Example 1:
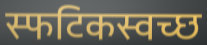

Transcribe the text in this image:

स्फटिकस्वच्छ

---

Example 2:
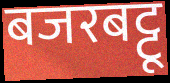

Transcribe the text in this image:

बजरबट्टू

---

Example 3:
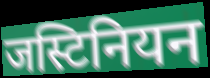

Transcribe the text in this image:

जस्टिनियन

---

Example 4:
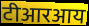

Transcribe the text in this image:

टीआरआय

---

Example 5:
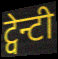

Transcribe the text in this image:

ट्वेन्टी